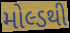
મોલ્ડથી